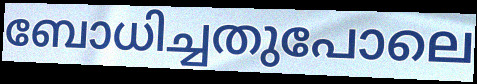
ബോധിച്ചതുപോലെ